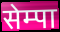
सेम्पा